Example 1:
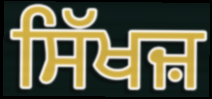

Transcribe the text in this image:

ਸਿੱਖਜ਼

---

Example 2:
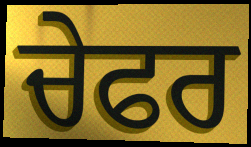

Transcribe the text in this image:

ਚੇਫਰ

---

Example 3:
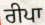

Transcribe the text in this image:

ਰੀਪਾ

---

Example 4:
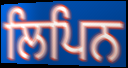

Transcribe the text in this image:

ਲਿਪਿਨ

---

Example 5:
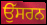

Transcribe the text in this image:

ਉੱਸਰਨ